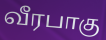
வீரபாகு